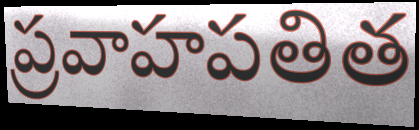
ప్రవాహపతిత